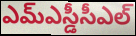
ఎమ్ఎస్డీసీఎల్